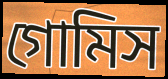
গোমিস